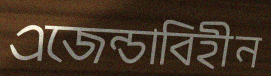
এজেন্ডাবিহীন